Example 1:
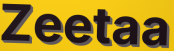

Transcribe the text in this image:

Zeetaa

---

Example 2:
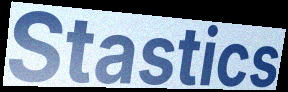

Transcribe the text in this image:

Stastics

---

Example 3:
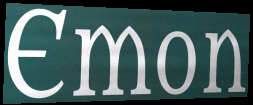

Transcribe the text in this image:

Emon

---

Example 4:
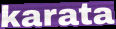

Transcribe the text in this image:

karata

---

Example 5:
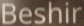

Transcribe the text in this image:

Beshir